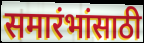
समारंभांसाठी